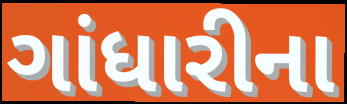
ગાંધારીના